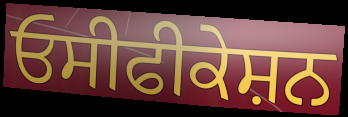
ਓਸੀਫੀਕੇਸ਼ਨ